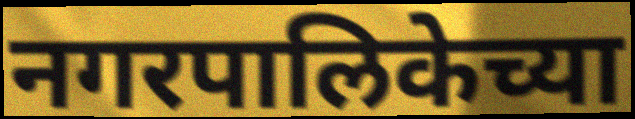
नगरपालिकेच्या